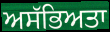
ਅਸੱਭਿਅਤਾ